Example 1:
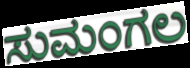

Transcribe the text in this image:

ಸುಮಂಗಲ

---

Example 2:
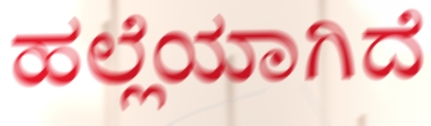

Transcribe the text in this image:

ಹಲ್ಲೆಯಾಗಿದೆ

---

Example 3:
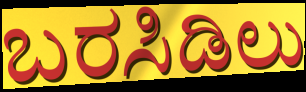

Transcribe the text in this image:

ಬರಸಿಡಿಲು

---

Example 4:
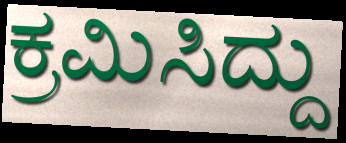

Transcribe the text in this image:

ಕ್ರಮಿಸಿದ್ದು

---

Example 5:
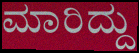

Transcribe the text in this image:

ಮಾರಿದ್ದು